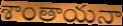
శాంతాయనా